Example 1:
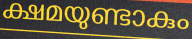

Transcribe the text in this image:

ക്ഷമയുണ്ടാകും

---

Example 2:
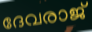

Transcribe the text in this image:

ദേവരാജ്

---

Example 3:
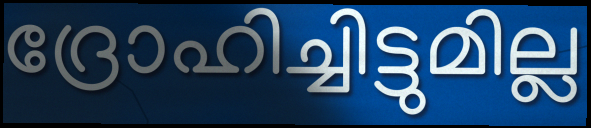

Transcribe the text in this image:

ദ്രോഹിച്ചിട്ടുമില്ല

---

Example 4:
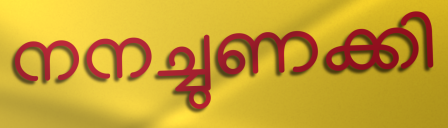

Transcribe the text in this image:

നനച്ചുണക്കി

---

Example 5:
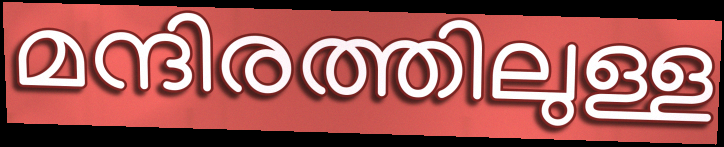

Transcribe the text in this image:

മന്ദിരത്തിലുള്ള